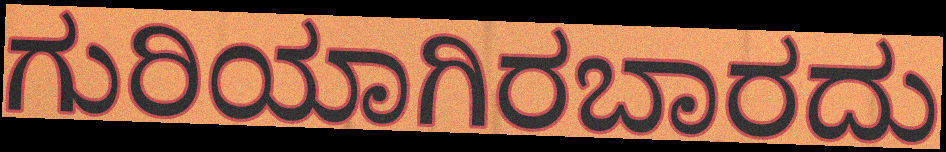
ಗುರಿಯಾಗಿರಬಾರದು